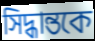
সিদ্ধান্তকে